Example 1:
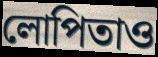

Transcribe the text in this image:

লোপিতাও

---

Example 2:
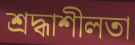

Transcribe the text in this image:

শ্রদ্ধাশীলতা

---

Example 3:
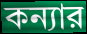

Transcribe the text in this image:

কন্যার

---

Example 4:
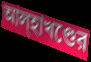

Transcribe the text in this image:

আল্হাখণ্ডের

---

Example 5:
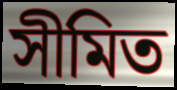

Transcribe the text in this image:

সীমিত